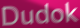
Dudok